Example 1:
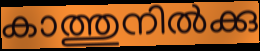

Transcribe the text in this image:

കാത്തുനിൽക്കു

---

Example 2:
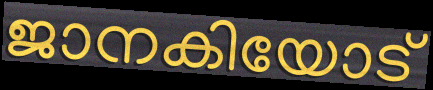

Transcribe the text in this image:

ജാനകിയോട്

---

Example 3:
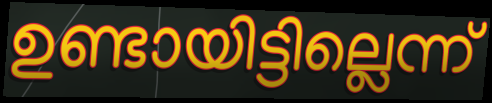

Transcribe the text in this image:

ഉണ്ടായിട്ടില്ലെന്ന്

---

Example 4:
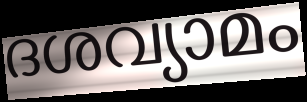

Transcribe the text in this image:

ദശവ്യാമം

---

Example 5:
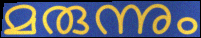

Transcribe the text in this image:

മരുന്നും